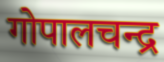
गोपालचन्द्र